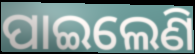
ପାଇଲେଣି